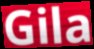
Gila